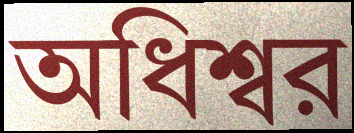
অধিশ্বর